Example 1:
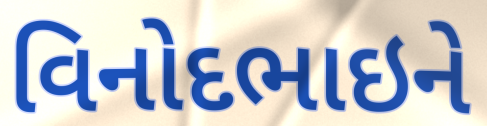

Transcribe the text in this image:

વિનોદભાઇને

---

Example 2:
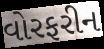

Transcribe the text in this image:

વોરફરીન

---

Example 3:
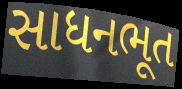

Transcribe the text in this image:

સાધનભૂત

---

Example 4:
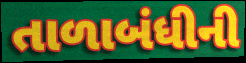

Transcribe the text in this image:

તાળાબંધીની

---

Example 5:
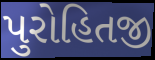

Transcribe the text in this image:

પુરોહિતજી